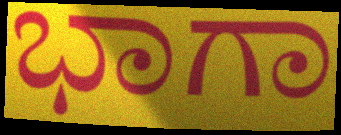
ಭಾಗಾ